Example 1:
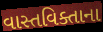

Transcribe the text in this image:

વાસ્તવિક્તાના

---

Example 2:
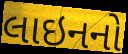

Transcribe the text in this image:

લાઇનનો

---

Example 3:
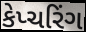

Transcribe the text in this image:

કેપ્ચરિંગ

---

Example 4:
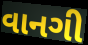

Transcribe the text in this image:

વાનગી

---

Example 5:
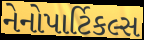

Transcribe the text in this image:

નેનોપાર્ટિકલ્સ